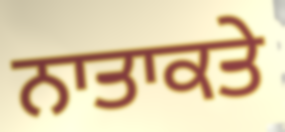
ਨਾਤਾਕਤੇ